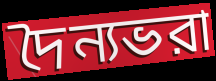
দৈন্যভরা